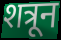
शत्रून